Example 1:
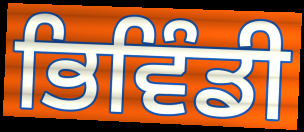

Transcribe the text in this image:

ਭਿਵਿੰਡੀ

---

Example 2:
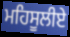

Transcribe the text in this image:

ਮਹਿਸੂਲੀਏ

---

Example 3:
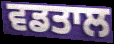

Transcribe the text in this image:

ਵਡਤਾਲ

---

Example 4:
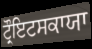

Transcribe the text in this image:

ਟ੍ਰੌਇਟਸਕਾਯਾ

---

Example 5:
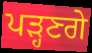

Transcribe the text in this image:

ਪੜ੍ਹਣਗੇ